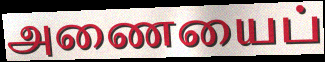
அணையைப்